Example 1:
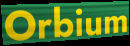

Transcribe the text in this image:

Orbium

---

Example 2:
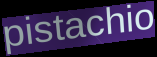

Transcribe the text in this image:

pistachio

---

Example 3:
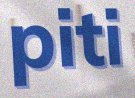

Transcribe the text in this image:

piti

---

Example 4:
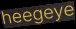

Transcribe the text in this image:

heegeye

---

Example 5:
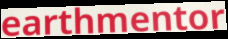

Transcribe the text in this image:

earthmentor